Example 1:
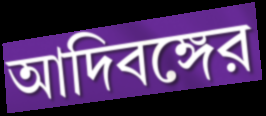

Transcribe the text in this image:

আদিবঙ্গের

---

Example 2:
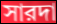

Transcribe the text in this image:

সারদা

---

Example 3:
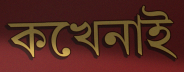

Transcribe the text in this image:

কখেনাই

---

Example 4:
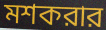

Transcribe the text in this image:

মশকরার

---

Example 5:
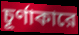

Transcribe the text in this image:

চূর্ণাকারে